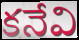
కనేవి